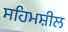
ਸਹਿਮਸ਼ੀਲ